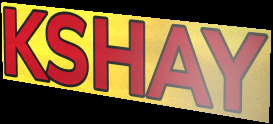
KSHAY